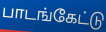
பாடங்கேட்டு